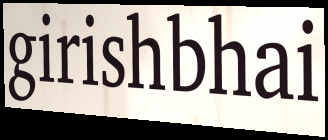
girishbhai